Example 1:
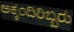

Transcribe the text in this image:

ಅಕ್ಕಂದಿರಿಬ್ಬರು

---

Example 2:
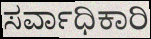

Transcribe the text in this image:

ಸರ್ವಾಧಿಕಾರಿ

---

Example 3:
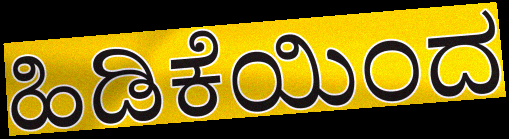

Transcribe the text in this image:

ಹಿಡಿಕೆಯಿಂದ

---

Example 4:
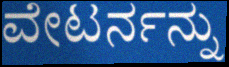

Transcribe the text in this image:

ವೇಟರ್ನನ್ನು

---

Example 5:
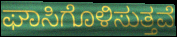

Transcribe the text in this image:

ಘಾಸಿಗೊಳಿಸುತ್ತವೆ